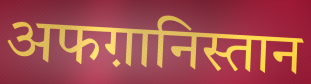
अफग़ानिस्तान